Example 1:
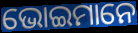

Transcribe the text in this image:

ଭୋଇମାନେ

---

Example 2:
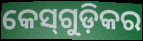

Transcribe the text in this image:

କେସ୍‌ଗୁଡ଼ିକର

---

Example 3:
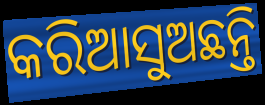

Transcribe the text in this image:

କରିଆସୁଅଛନ୍ତି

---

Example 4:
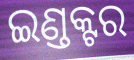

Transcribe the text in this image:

ଇଣ୍ଡକ୍ଟର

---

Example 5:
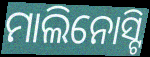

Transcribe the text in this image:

ମାଲିନୋସ୍ଟି